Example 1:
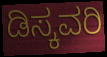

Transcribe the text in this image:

ಡಿಸ್ಕವರಿ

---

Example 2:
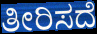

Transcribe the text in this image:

ತೀರಿಸದೆ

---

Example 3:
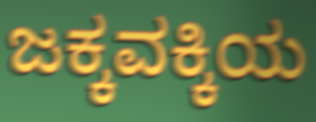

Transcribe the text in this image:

ಜಕ್ಕವಕ್ಕಿಯ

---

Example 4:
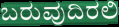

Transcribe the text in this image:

ಬರುವುದಿರಲಿ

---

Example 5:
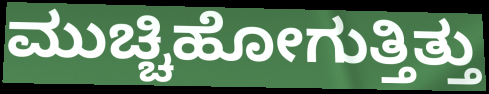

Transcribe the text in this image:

ಮುಚ್ಚಿಹೋಗುತ್ತಿತ್ತು